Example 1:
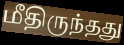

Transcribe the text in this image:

மீதிருந்தது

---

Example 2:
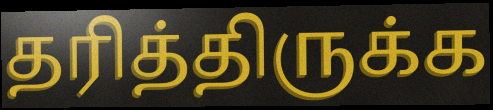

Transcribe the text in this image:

தரித்திருக்க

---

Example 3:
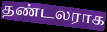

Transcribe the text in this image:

தண்டலராக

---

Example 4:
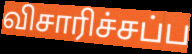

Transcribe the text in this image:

விசாரிச்சப்ப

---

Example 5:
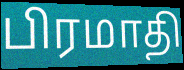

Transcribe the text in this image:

பிரமாதி